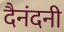
दैनंदनी